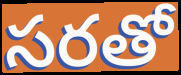
సరతో